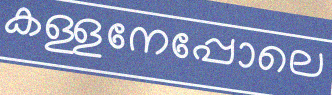
കള്ളനേപ്പോലെ